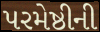
પરમેષ્ઠીની